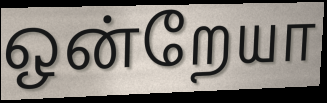
ஒன்றேயா